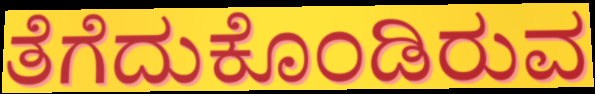
ತೆಗೆದುಕೊಂಡಿರುವ